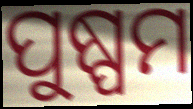
ପୁଷ୍ପମ